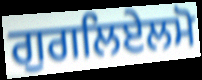
ਗੁਗਲਿਏਲਮੋ